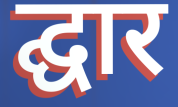
द्घार